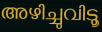
അഴിച്ചുവിടൂ